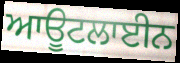
ਆਊਟਲਾਈਨ